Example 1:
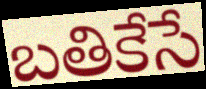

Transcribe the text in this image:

బతికేసే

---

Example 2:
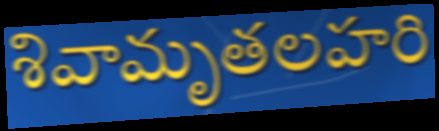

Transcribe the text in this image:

శివామృతలహరి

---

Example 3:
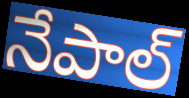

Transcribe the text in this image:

నేపాల్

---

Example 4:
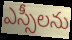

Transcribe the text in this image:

ఎస్సీలను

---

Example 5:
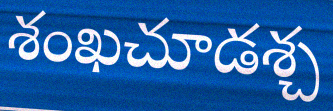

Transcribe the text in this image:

శంఖచూడశ్చ